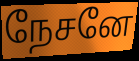
நேசனே